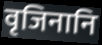
वृजिनानि